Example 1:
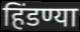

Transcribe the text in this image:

हिंडण्या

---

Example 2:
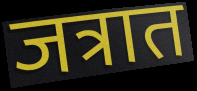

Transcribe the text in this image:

जत्रात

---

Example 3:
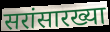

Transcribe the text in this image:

सरांसारख्या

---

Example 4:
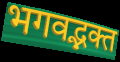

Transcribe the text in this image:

भगवद्भक्त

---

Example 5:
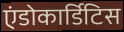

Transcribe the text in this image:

एंडोकार्डिटिस